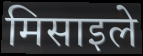
मिसाइले